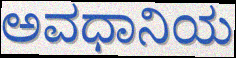
ಅವಧಾನಿಯ